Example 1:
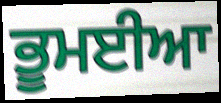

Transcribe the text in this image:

ਭੂਮਈਆ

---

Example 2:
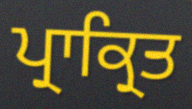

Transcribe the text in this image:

ਪ੍ਰਾਕ੍ਰਿਤ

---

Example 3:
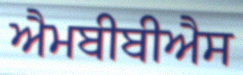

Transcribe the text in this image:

ਐਮਬੀਬੀਐਸ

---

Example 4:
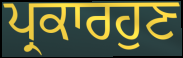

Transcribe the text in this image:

ਪ੍ਰਕਾਰਹੁਣ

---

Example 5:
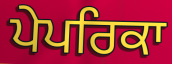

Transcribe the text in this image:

ਪੇਪਰਿਕਾ